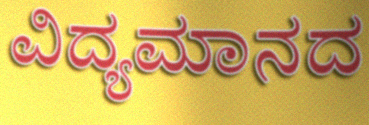
ವಿದ್ಯಮಾನದ